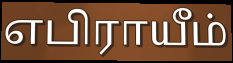
எபிராயீம்